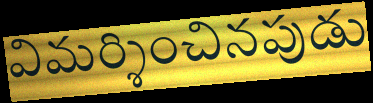
విమర్శించినపుడు